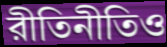
রীতিনীতিও